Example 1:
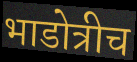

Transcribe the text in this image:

भाडोत्रीच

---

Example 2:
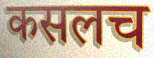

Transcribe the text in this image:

कसलच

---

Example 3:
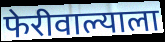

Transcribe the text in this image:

फेरीवाल्याला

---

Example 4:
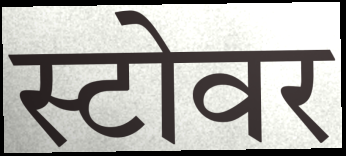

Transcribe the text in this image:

स्टोवर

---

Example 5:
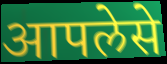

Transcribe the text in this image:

आपलेसे